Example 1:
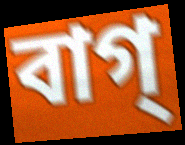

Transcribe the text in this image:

বাগ্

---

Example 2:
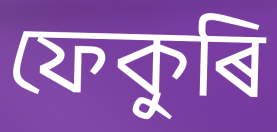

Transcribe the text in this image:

ফেকুৰি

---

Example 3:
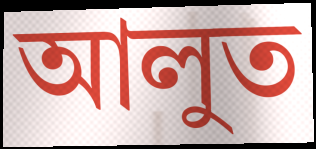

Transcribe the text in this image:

আলুত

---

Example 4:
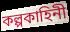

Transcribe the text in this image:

কল্পকাহিনী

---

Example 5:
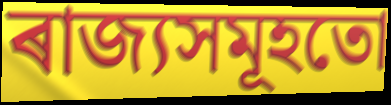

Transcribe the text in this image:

ৰাজ্যসমূহতো